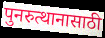
पुनरुत्थानासाठी